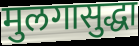
मुलगासुद्धा